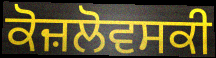
ਕੋਜ਼ਲੋਵਸਕੀ